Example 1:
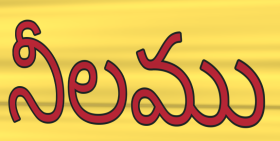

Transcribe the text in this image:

నీలము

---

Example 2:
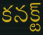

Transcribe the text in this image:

కనక్ట్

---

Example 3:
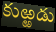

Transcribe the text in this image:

కుఱ్ఱడు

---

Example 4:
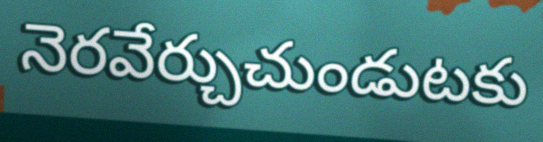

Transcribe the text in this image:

నెరవేర్చుచుండుటకు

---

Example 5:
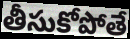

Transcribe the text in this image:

తీసుకోపోతే